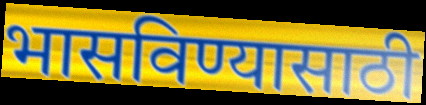
भासविण्यासाठी